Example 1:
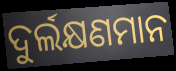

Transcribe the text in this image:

ଦୁର୍ଲକ୍ଷଣମାନ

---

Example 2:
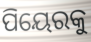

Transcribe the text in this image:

ପିୟେରକୁ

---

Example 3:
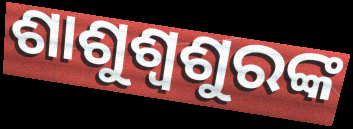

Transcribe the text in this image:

ଶାଶୁଶ୍ୱଶୁରଙ୍କ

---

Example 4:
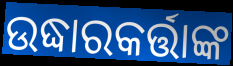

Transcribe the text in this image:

ଉଦ୍ଧାରକର୍ତ୍ତାଙ୍କ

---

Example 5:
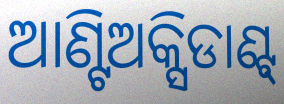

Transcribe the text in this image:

ଆଣ୍ଟିଅକ୍ସିଡାଣ୍ଟ୍